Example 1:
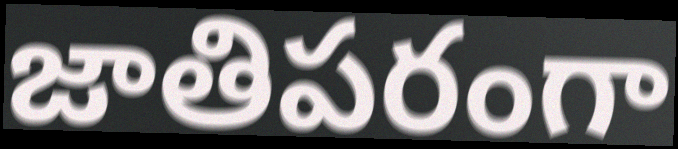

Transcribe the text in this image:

జాతిపరంగా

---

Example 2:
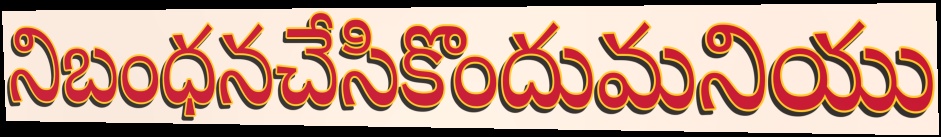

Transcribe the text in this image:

నిబంధనచేసికొందుమనియు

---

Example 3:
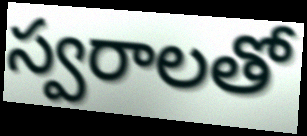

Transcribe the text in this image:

స్వరాలతో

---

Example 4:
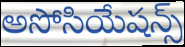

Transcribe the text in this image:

అసోసియేషన్స్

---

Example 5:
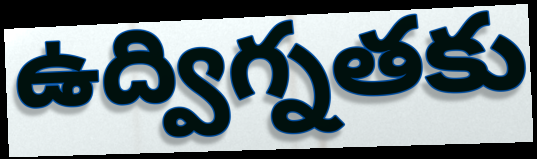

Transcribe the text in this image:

ఉద్విగ్నతకు